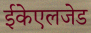
ईकेएलजेड